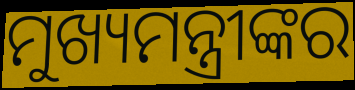
ମୁଖ୍ୟମନ୍ତ୍ରୀଙ୍କର